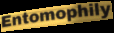
Entomophily